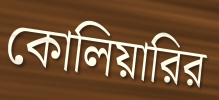
কোলিয়ারির